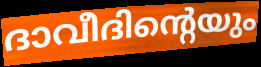
ദാവീദിന്റെയും